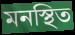
মনস্থিত